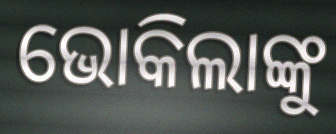
ଭୋକିଲାଙ୍କୁ